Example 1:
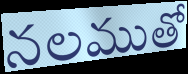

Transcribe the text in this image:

నలముతో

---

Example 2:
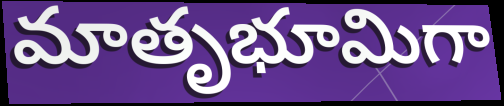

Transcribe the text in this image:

మాతృభూమిగా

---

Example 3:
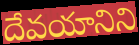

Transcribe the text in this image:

దేవయానిని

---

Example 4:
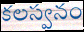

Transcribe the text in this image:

కలస్వనం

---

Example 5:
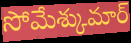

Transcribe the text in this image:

సోమేశ్కుమార్